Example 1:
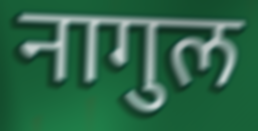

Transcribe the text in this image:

नागुल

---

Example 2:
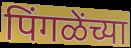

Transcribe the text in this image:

पिंगळेंच्या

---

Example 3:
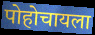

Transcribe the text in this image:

पोहोचायला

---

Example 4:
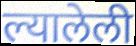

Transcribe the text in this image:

ल्यालेली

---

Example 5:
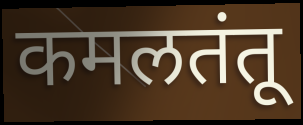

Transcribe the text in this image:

कमलतंतू